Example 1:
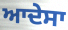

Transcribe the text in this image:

ਆਦੇਸਾ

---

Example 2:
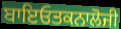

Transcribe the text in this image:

ਬਾਇਓਤਕਨਾਲੋਜੀ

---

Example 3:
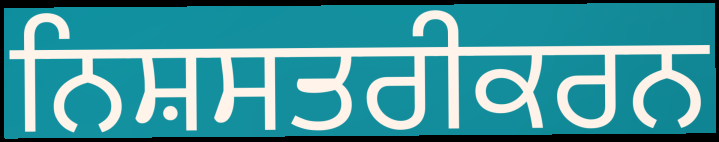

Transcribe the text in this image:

ਨਿਸ਼ਸਤਰੀਕਰਨ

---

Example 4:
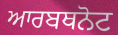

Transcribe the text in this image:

ਆਰਬਥਨੋਟ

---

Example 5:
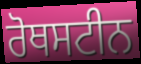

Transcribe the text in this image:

ਰੋਥਸਟੀਨ